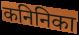
कनिनिका